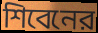
শিবেনের